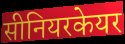
सीनियरकेयर